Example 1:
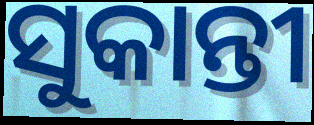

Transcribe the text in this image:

ସୁକାନ୍ତୀ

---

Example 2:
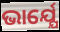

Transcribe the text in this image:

ଭାର୍ଯ୍ଯେ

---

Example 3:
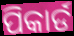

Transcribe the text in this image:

ପିକାର୍ଡ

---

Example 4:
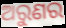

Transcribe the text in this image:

ଅରୁଣର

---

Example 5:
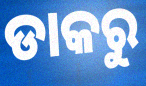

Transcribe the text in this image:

ଡାକରୁ